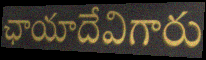
ఛాయాదేవిగారు